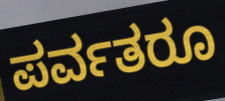
ಪರ್ವತರೂ